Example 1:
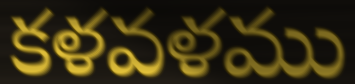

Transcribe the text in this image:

కళవళము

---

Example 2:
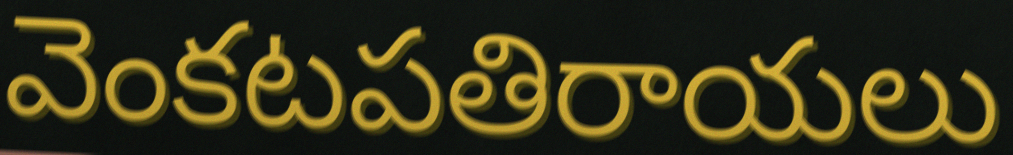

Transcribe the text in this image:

వెంకటపతిరాయలు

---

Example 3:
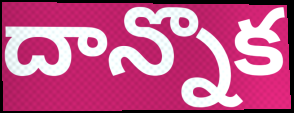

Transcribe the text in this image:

దాన్నొక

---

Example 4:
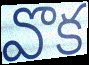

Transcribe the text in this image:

వొక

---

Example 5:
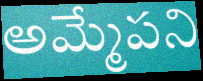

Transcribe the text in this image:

అమ్మేపని